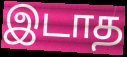
இடாத